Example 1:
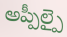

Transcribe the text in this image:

అప్పీల్పై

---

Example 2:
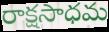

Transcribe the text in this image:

రాక్షసాధమ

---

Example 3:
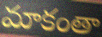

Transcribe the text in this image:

మాకంతా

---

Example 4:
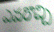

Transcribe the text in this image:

ఎవరొచ్చి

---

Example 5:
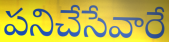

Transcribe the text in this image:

పనిచేసేవారే